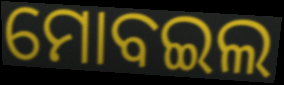
ମୋବଇଲ